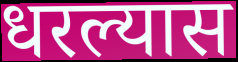
धरल्यास